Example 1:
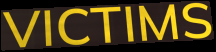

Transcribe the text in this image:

VICTIMS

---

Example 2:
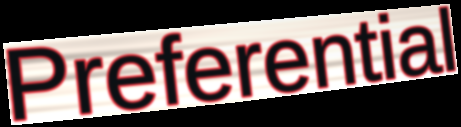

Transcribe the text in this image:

Preferential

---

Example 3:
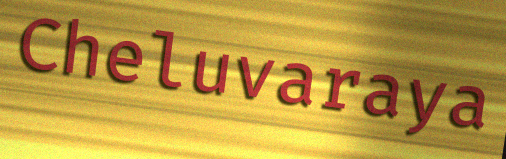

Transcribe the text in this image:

Cheluvaraya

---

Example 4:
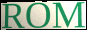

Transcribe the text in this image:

ROM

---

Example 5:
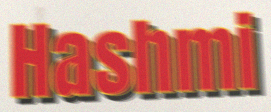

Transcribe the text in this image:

Hashmi